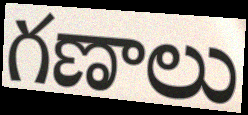
గణాలు